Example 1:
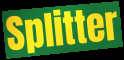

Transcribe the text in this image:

Splitter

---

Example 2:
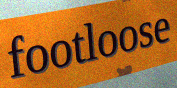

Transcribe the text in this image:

footloose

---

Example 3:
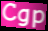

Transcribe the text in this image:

Cgp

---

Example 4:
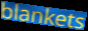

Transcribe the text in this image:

blankets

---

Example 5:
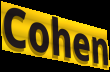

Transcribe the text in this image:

Cohen